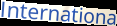
Internationa